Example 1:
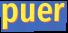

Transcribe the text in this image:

puer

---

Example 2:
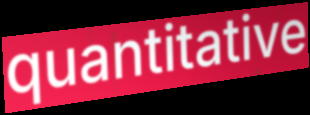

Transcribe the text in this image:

quantitative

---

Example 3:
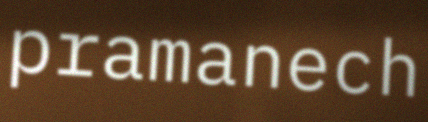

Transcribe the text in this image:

pramanech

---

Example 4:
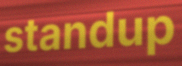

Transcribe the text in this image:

standup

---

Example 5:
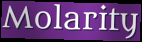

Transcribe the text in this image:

Molarity